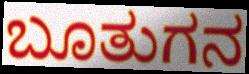
ಬೂತುಗನ